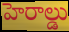
హెరాల్డు